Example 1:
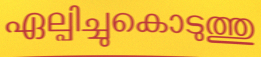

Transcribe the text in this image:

ഏല്പിച്ചുകൊടുത്തു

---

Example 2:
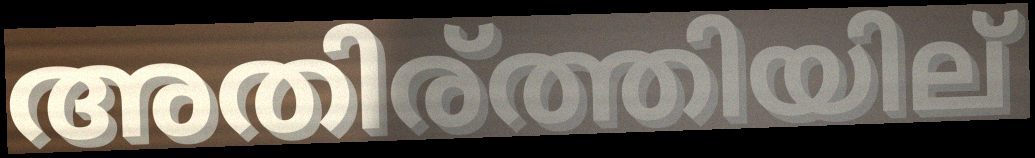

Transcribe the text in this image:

അതിര്ത്തിയില്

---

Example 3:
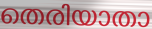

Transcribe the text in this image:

തെരിയാതാ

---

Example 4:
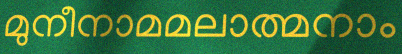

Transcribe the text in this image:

മുനീനാമമലാത്മനാം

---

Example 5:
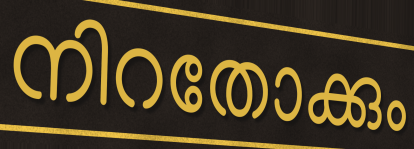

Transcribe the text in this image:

നിറതോക്കും